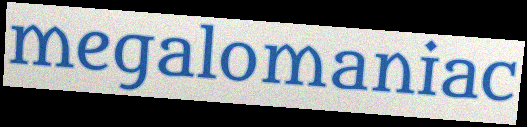
megalomaniac